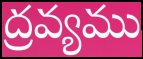
ద్రవ్యము